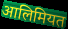
आलिमियत